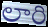
లారి